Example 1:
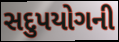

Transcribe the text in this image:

સદુપયોગની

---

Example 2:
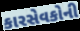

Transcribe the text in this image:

કારસેવકોની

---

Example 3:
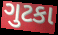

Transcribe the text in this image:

ગુટકા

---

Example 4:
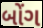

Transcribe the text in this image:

બોંગ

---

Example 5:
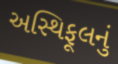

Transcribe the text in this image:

અસ્થિફૂલનું